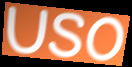
USO